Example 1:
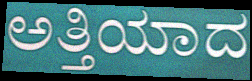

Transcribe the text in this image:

ಅತ್ತಿಯಾದ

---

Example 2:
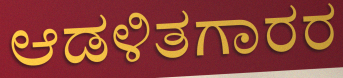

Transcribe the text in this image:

ಆಡಳಿತಗಾರರ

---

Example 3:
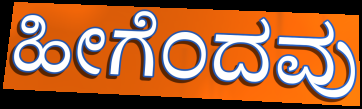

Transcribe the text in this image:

ಹೀಗೆಂದವು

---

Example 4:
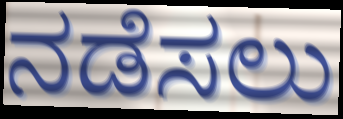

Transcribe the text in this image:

ನಡೆಸಲು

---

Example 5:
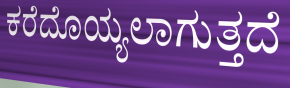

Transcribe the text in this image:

ಕರೆದೊಯ್ಯಲಾಗುತ್ತದೆ